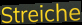
Streiche